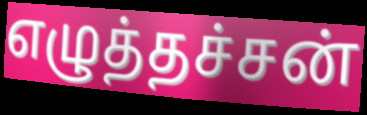
எழுத்தச்சன்